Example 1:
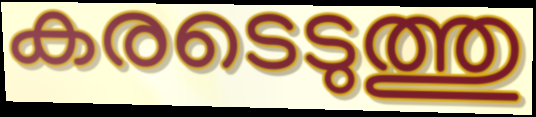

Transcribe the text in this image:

കരടെടുത്തു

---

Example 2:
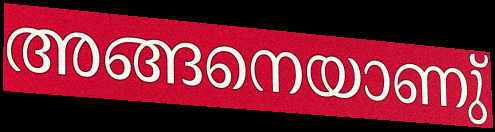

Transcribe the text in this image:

അങ്ങനെയാണു്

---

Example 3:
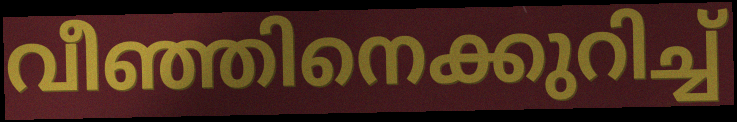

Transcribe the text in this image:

വീഞ്ഞിനെക്കുറിച്ച്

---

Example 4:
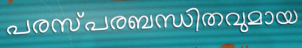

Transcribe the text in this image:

പരസ്പരബന്ധിതവുമായ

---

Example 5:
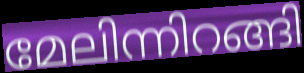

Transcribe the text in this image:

മേലിന്നിറങ്ങി